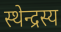
स्थेन्द्रस्य